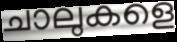
ചാലുകളെ